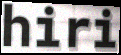
hiri